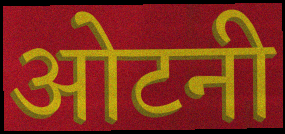
ओटनी